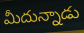
మీదున్నాడు